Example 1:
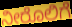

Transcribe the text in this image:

ನೀರೊಲಿಗೆ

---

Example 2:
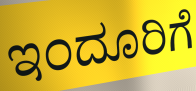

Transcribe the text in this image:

ಇಂದೂರಿಗೆ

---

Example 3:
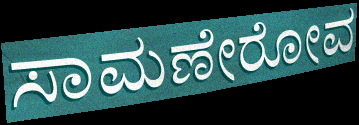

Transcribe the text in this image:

ಸಾಮಣೇರೋವ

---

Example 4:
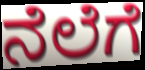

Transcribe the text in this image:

ನೆಲೆಗೆ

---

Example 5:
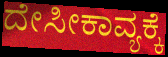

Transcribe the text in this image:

ದೇಸೀಕಾವ್ಯಕ್ಕೆ